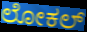
ಲೋಕಲ್